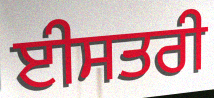
ਈਸਤਰੀ